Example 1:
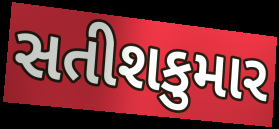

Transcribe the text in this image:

સતીશકુમાર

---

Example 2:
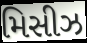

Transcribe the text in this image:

મિસીઝ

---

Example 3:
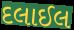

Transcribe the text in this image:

દલાઈલ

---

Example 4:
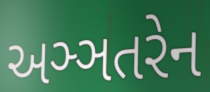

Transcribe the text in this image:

અઞ્ઞતરેન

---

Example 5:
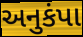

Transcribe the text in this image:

અનુકંપા